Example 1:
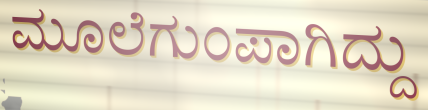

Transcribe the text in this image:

ಮೂಲೆಗುಂಪಾಗಿದ್ದು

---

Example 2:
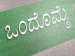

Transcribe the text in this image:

ಒಂದೊಮ್ಮೆ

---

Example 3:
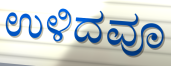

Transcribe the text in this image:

ಉಳಿದವೂ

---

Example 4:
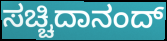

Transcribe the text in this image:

ಸಚ್ಚಿದಾನಂದ್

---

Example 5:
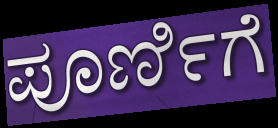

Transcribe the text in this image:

ಪೂರ್ಣಿಗೆ